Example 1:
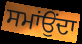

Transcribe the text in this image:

ਸਮਾਂਉਂਦਾ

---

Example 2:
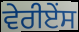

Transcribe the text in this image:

ਵੇਰੀਏਂਸ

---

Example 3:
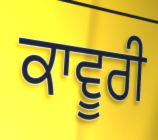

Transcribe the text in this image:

ਕਾਵੂਰੀ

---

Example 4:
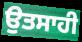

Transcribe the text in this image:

ਉਤਸਾਹੀ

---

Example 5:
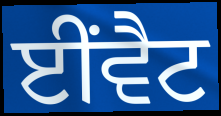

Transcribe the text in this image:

ਈਂਵੈਟ